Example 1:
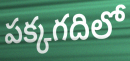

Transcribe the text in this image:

పక్కగదిలో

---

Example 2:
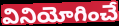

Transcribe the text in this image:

వినియోగించే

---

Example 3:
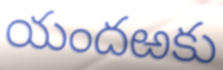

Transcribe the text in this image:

యందఱకు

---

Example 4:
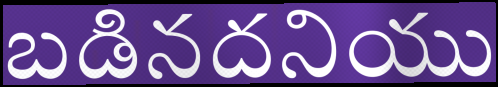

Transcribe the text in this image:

బడినదనియు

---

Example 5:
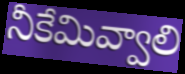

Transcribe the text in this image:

నీకేమివ్వాలి